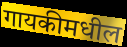
गायकीमधील